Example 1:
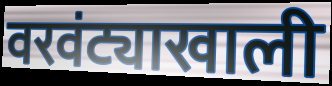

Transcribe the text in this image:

वरवंट्याखाली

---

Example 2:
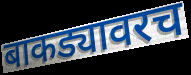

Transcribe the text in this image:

बाकड्यावरच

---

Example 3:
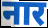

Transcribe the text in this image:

नार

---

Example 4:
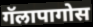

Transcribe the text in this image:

गॅलापागोस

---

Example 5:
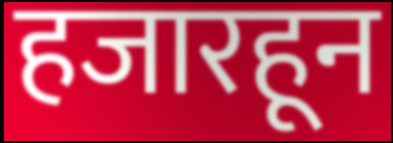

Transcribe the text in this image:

हजारहून